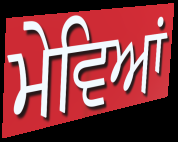
ਮੇਵਿਆਂ